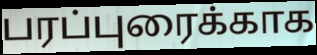
பரப்புரைக்காக